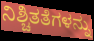
ನಿಶ್ಚಿತತೆಗಳನ್ನು